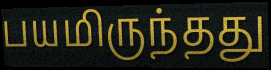
பயமிருந்தது